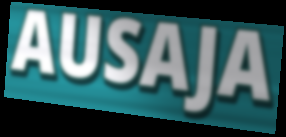
AUSAJA